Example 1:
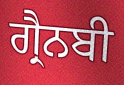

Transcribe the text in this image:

ਗ੍ਰੈਨਬੀ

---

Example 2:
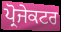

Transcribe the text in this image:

ਪ੍ਰੋਜੇਕਟਰ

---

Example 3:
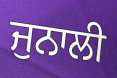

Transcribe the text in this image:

ਜੁਨਾਲੀ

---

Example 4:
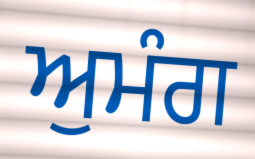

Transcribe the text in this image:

ਅੁਮੰਗ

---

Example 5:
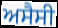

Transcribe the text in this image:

ਅਸੈਸੀ